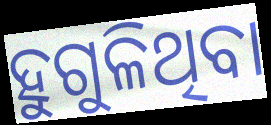
ହୁଗୁଳିଥିବା